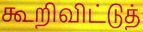
கூறிவிட்டுத்